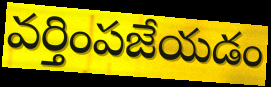
వర్తింపజేయడం